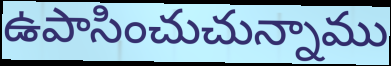
ఉపాసించుచున్నాము